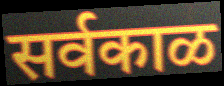
सर्वकाळ